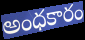
అంధకారం